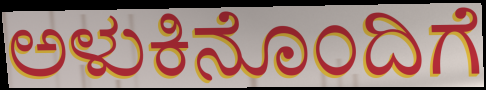
ಅಳುಕಿನೊಂದಿಗೆ